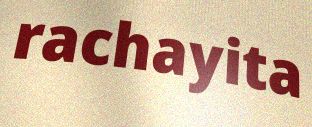
rachayita